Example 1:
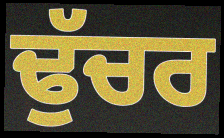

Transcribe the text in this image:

ਢੁੱਚਰ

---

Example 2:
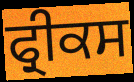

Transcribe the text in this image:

ਫ੍ਰੀਕਸ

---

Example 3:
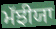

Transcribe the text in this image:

ਮੱਝੀਯਾ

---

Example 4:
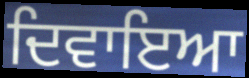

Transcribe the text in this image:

ਦਿਵਾਇਆ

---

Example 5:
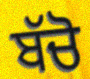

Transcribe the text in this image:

ਬੱਚੋ